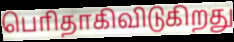
பெரிதாகிவிடுகிறது